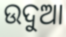
ଉଦୁଆ